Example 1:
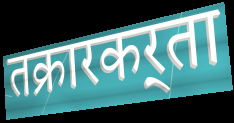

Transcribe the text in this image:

तक्रारकर्ता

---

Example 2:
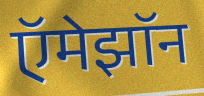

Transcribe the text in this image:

ऍमेझॉन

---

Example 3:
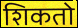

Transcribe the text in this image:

शिकतो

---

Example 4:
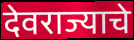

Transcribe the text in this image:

देवराज्याचे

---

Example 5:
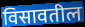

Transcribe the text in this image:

विसावतील